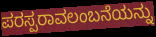
ಪರಸ್ಪರಾವಲಂಬನೆಯನ್ನು